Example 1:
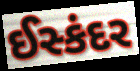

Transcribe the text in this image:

ઈસ્કંદર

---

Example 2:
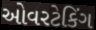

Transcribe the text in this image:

ઓવરટેકિંગ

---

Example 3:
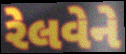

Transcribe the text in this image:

રેલવેને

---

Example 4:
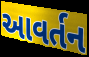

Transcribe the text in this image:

આવર્તન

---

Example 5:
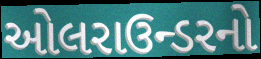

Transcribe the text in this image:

ઓલરાઉન્ડરનો